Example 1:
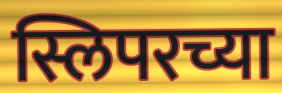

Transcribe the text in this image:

स्लिपरच्या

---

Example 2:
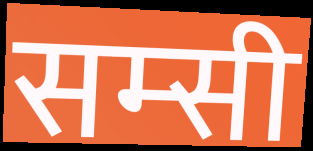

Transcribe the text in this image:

सम्सी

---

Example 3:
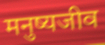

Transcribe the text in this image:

मनुष्यजीव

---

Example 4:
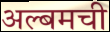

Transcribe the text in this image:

अल्बमची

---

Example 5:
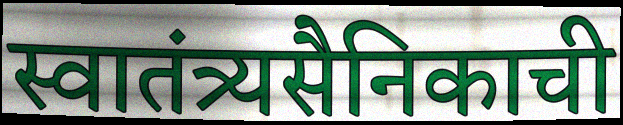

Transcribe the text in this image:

स्वातंत्र्यसैनिकाची